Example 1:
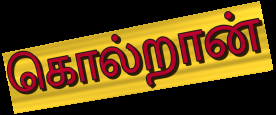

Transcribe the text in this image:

கொல்றான்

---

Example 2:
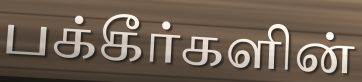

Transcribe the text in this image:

பக்கீர்களின்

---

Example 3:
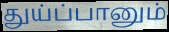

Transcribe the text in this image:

துய்ப்பானும்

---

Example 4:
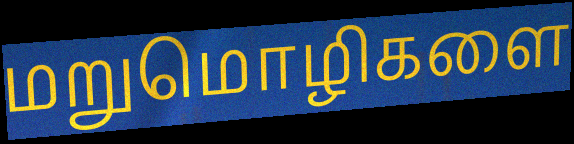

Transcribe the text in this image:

மறுமொழிகளை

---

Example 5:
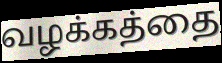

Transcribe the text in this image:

வழக்கத்தை